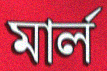
মার্ল